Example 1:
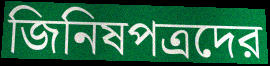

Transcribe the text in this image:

জিনিষপত্রদের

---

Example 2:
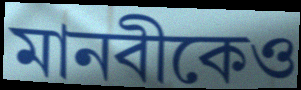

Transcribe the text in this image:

মানবীকেও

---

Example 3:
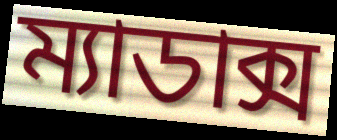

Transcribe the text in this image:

ম্যাডাক্স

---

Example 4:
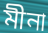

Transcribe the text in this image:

মীনা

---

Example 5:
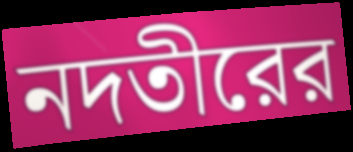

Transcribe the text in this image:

নদতীরের